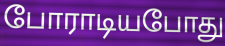
போராடியபோது